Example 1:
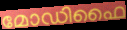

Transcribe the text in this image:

മോഡിഫൈ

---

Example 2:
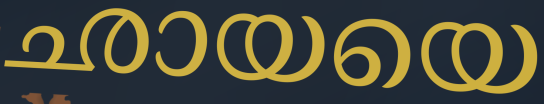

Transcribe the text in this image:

ഛായയെ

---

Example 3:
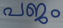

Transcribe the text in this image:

പജം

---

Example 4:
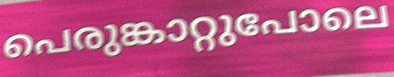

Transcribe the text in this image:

പെരുങ്കാറ്റുപോലെ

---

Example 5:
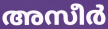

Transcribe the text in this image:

അസീർ